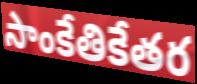
సాంకేతికేతర